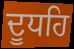
ਦੂਧਹਿ